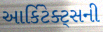
આર્કિટેક્ટ્સની